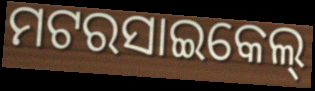
ମଟରସାଇକେଲ୍